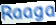
Raaga